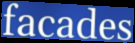
facades